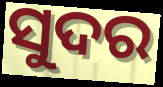
ସୁଦର